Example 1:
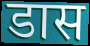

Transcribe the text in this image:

डास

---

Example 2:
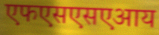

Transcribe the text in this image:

एफएसएसएआय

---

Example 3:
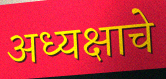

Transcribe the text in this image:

अध्यक्षाचे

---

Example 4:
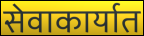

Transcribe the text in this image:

सेवाकार्यात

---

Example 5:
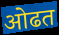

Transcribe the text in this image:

ओढत